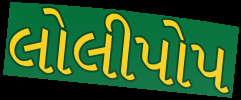
લોલીપોપ